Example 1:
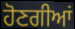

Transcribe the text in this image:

ਹੋਣਗੀਆਂ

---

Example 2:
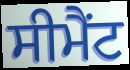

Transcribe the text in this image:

ਸੀਮੈੰਟ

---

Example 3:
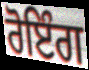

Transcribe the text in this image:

ਰੋਇੰਗ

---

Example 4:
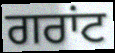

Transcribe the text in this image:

ਗਰਾਂਟ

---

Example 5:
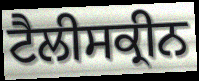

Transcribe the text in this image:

ਟੈਲੀਸਕ੍ਰੀਨ